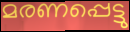
മരണപ്പെട്ടു